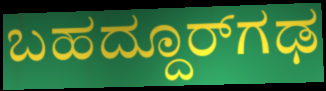
ಬಹದ್ದೂರ್‌ಗಢ